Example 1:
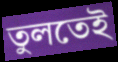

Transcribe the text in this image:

তুলতেই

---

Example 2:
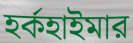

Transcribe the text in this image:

হর্কহাইমার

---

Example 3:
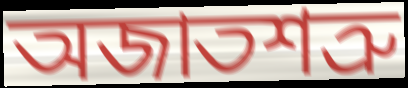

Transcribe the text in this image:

অজাতশত্রু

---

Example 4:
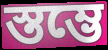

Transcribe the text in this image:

স্তম্ভে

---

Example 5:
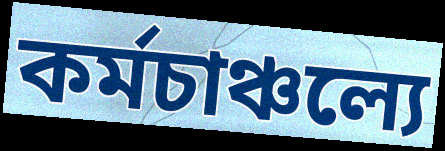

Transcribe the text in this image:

কর্মচাঞ্চল্যে